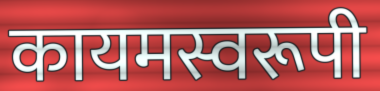
कायमस्वरूपी